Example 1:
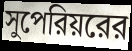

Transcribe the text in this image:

সুপেরিয়রের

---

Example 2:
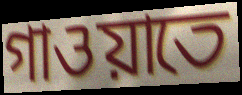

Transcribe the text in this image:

গাওয়াতে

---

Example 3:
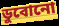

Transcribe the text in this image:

ডুবোনো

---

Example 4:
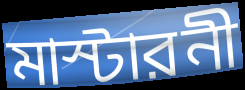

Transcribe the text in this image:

মাস্টারনী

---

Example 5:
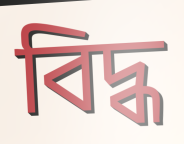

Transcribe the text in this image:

বিদ্ধ